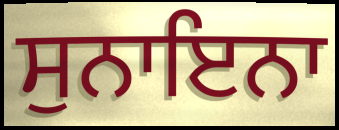
ਸੁਨਾਇਨਾ